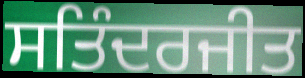
ਸਤਿੰਦਰਜੀਤ